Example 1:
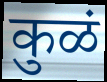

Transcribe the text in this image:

कुळं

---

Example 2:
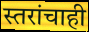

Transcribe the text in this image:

स्तरांचाही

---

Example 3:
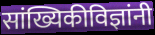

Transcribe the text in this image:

सांख्यिकीविज्ञांनी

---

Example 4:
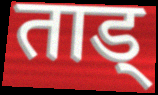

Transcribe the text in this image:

ताड्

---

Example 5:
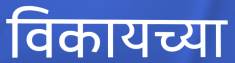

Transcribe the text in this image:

विकायच्या